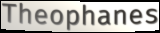
Theophanes